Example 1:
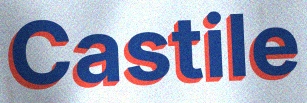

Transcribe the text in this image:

Castile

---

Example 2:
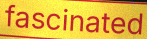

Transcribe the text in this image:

fascinated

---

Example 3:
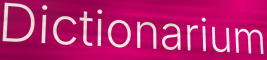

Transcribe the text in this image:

Dictionarium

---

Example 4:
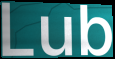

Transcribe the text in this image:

Lub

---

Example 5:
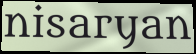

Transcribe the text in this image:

nisaryan